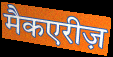
मैकएरीज़